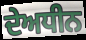
ਦੇਅਧੀਨ